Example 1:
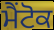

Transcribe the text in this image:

ਮੈਂਟੋਕ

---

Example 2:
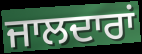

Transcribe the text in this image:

ਜਾਲਦਾਰਾਂ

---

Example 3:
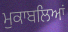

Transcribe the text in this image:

ਮੁਕਾਬਲਿਆਂ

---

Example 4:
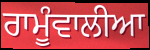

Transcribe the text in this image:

ਰਾਮੂੰਵਾਲੀਆ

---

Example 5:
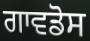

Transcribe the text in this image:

ਗਾਵਡੋਸ